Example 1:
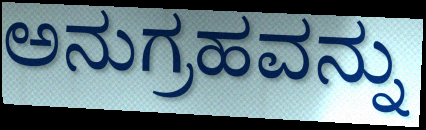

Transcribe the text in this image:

ಅನುಗ್ರಹವನ್ನು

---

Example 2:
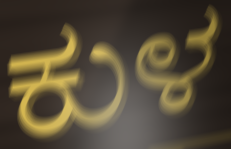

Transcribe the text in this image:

ಕುಳ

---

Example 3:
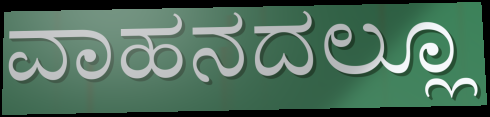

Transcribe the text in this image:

ವಾಹನದಲ್ಲೂ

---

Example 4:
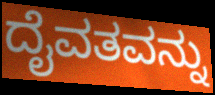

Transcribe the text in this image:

ದೈವತವನ್ನು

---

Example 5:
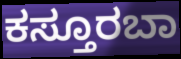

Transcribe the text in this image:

ಕಸ್ತೂರಬಾ